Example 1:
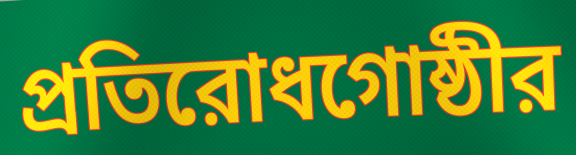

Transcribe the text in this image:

প্রতিরোধগোষ্ঠীর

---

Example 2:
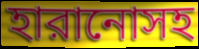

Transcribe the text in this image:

হারানোসহ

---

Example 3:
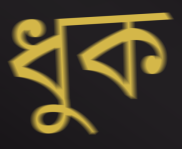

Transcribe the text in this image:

ধুক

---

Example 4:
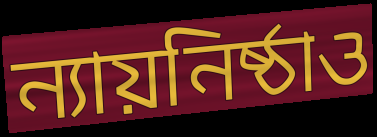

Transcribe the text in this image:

ন্যায়নিষ্ঠাও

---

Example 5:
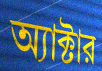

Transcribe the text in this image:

অ্যাক্টার